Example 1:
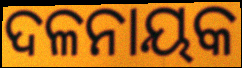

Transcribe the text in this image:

ଦଳନାୟକ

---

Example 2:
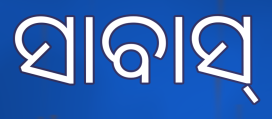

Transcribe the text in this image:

ସାବାସ୍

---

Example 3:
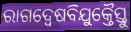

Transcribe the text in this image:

ରାଗଦ୍ୱେଷବିଯୁକ୍ତୈସ୍ତୁ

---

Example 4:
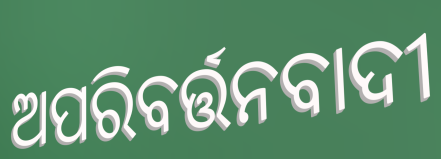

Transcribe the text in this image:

ଅପରିବର୍ତ୍ତନବାଦୀ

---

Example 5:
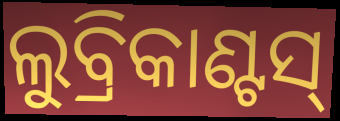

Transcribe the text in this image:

ଲୁବ୍ରିକାଣ୍ଟସ୍